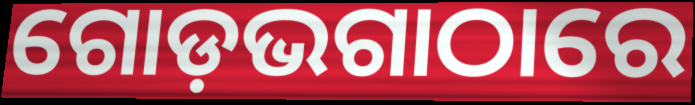
ଗୋଡ଼ଭଗାଠାରେ